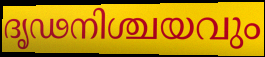
ദൃഢനിശ്ചയവും